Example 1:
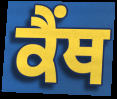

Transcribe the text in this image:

ਕੈਂਥ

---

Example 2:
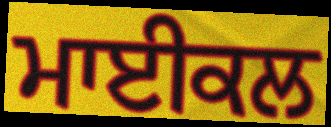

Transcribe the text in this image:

ਮਾਈਕਲ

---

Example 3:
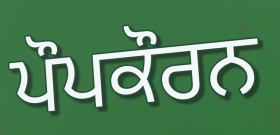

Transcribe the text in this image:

ਪੌਪਕੌਰਨ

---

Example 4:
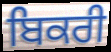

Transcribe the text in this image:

ਬਿਕਰੀ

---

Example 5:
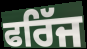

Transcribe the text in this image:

ਫਰਿੱਜ